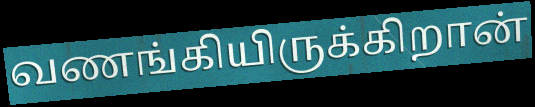
வணங்கியிருக்கிறான்